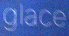
glace